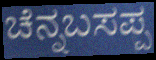
ಚೆನ್ನಬಸಪ್ಪ